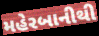
મહેરબાનીથી